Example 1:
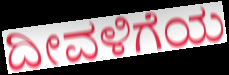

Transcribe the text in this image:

ದೀವಳಿಗೆಯ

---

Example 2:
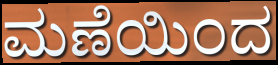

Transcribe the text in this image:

ಮಣೆಯಿಂದ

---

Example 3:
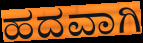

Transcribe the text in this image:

ಹದವಾಗಿ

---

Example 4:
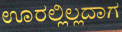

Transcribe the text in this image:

ಊರಲ್ಲಿಲ್ಲದಾಗ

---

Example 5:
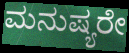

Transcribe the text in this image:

ಮನುಷ್ಯರೇ